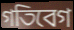
গতিবেগ